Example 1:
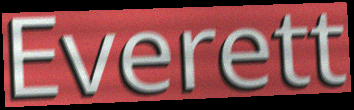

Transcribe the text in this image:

Everett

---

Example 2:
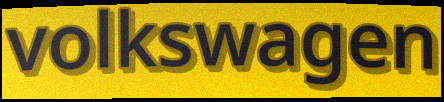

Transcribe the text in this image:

volkswagen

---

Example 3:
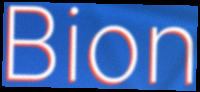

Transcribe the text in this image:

Bion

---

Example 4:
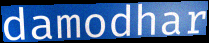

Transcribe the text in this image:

damodhar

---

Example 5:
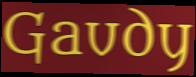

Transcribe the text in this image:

Gaudy